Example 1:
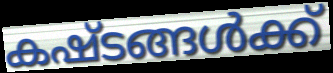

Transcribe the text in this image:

കഷ്ടങ്ങൾക്ക്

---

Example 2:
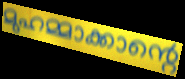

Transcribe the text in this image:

മുഹമ്മാക്കാന്റെ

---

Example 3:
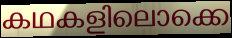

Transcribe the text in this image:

കഥകളിലൊക്കെ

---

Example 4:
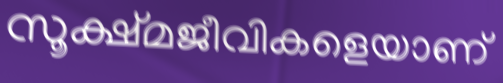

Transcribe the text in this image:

സൂക്ഷ്മജീവികളെയാണ്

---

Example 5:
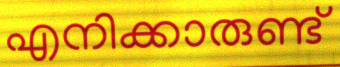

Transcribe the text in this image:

എനിക്കാരുണ്ട്